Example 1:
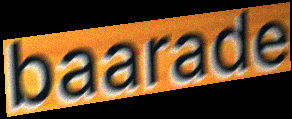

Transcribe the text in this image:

baarade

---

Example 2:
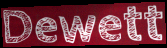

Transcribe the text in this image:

Dewett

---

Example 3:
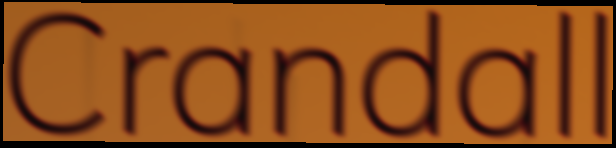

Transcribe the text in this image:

Crandall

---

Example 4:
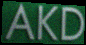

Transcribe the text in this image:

AKD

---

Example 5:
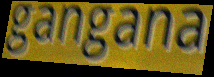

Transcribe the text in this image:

gangana